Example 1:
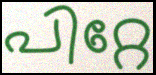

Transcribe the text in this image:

പിറ്റേ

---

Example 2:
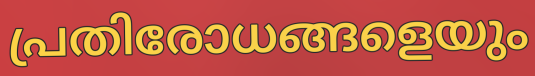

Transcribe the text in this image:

പ്രതിരോധങ്ങളെയും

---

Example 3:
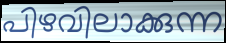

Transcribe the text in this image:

പിഴവിലാക്കുന്ന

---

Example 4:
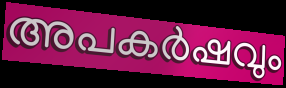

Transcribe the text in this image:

അപകർഷവും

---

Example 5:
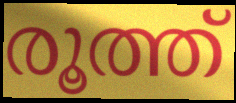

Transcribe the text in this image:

രൂത്ത്